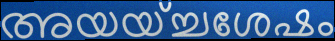
അയയ്ച്ചശേഷം